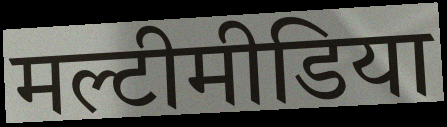
मल्टीमीडिया